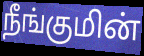
நீங்குமின்